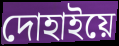
দোহাইয়ে